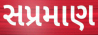
સપ્રમાણ